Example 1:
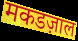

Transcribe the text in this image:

मकडज़ाल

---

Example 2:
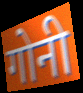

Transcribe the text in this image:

गोनी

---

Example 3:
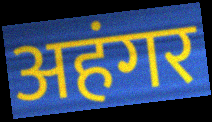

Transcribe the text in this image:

अहंगर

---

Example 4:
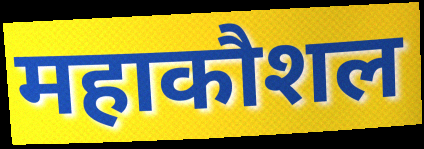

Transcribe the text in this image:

महाकौशल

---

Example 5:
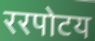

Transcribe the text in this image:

ररपोटय